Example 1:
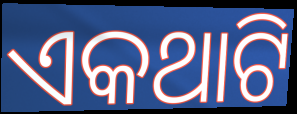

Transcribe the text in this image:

ଏକଥାଟି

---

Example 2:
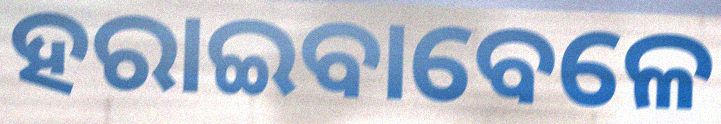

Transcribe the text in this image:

ହରାଇବାବେଳେ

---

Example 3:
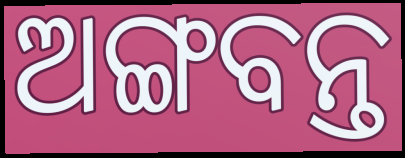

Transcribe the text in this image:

ଅଙ୍ଗବନ୍ତ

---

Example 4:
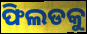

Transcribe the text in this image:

ଫିଲଡକୁ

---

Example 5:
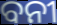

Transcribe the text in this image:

ବନୀ